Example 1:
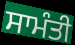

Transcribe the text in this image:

ਸਾਮੰਤੀ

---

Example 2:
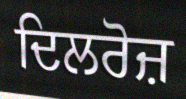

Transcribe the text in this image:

ਦਿਲਰੋਜ਼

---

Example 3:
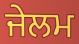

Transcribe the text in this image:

ਜੇਲਮ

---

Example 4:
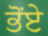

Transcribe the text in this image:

ਭੋਂਏ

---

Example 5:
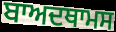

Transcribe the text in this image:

ਬਾਅਦਥਾਮਸ